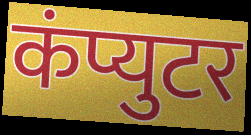
कंप्युटर